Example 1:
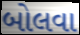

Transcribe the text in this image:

બોલવા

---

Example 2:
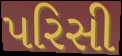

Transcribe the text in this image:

પરિસી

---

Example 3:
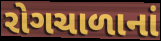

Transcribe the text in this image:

રોગચાળાનાં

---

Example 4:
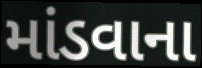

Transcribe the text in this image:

માંડવાના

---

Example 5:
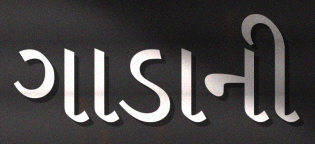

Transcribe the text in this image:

ગાડાની